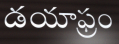
డయాఫ్రం